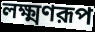
লক্ষ্মণরূপ